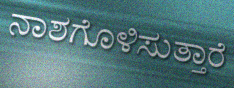
ನಾಶಗೊಳಿಸುತ್ತಾರೆ